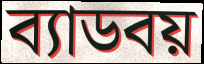
ব্যাডবয়